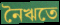
নৈঋতে